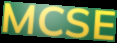
MCSE